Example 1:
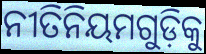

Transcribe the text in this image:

ନୀତିନିୟମଗୁଡ଼ିକୁ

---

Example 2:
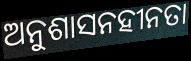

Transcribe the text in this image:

ଅନୁଶାସନହୀନତା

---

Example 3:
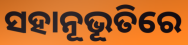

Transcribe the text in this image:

ସହାନୂଭୂତିରେ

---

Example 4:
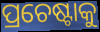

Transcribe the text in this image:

ପ୍ରଚେଷ୍ଟାକୁ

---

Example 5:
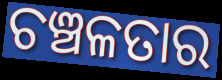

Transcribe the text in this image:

ଚଞ୍ଚଳତାର